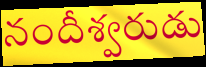
నందీశ్వరుడు